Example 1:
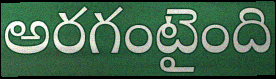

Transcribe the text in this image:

అరగంటైంది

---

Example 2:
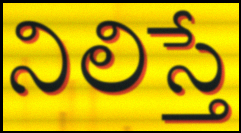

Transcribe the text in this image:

నిలిస్తే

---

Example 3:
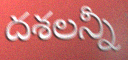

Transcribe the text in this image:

దశలన్నీ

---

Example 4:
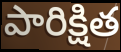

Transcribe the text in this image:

పారిక్షిత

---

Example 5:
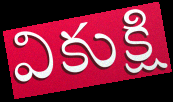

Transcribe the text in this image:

వికుక్షి